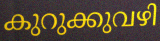
കുറുക്കുവഴി